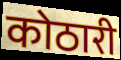
कोठारी